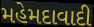
મહેમદાવાદી